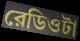
রেডিওটা